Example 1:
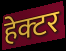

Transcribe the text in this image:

हेक्‍टर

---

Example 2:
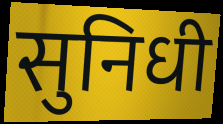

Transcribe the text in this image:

सुनिधी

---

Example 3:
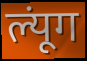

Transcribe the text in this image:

ल्यूंग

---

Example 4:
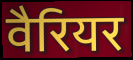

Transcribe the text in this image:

वैरियर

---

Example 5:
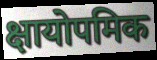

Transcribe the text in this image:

क्षायोपमिक